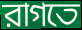
রাগতে